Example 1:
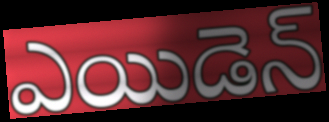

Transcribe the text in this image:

ఎయిడెన్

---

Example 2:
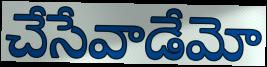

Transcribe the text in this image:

చేసేవాడేమో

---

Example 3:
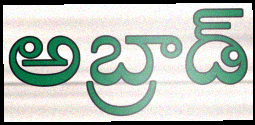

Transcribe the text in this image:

అబ్రాడ్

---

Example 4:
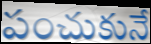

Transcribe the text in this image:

పంచుకునే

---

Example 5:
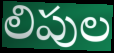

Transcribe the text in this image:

లిపుల